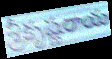
శ్రీకృష్ణరాయ